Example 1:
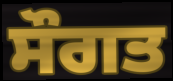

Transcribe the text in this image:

ਸੌਗਤ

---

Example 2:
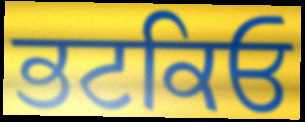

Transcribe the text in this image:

ਭਟਕਿਓ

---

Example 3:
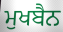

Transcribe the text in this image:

ਮੁਖਬੈਨ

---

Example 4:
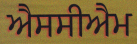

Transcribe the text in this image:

ਐਸਸੀਐਮ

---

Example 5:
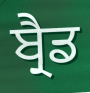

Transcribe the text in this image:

ਬ੍ਰੈਡ